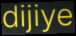
dijiye